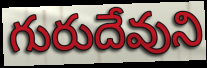
గురుదేవుని